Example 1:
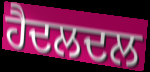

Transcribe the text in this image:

ਹੈਦਲਦਲ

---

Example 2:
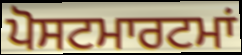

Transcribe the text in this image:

ਪੋਸਟਮਾਰਟਮਾਂ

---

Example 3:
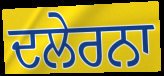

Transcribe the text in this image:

ਦਲੇਰਨਾ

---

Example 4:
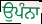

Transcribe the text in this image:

ਉਪੰਨਾ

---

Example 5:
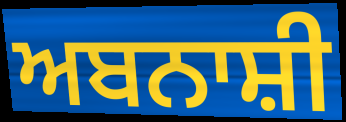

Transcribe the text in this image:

ਅਬਨਾਸ਼ੀ